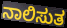
ನಾಲಿಸುತ